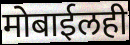
मोबाईलही